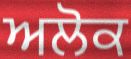
ਅਲੋਕ